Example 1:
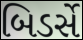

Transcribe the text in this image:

બિડર્સે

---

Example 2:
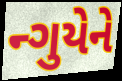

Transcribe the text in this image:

ન્ગુયેને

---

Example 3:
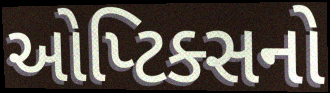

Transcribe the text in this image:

ઓપ્ટિક્સનો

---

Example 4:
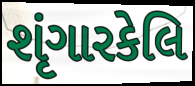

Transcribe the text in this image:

શૃંગારકેલિ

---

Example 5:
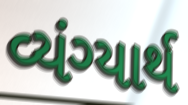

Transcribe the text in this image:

વ્યંગ્યાર્થ